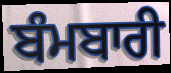
ਬੰਮਬਾਰੀ